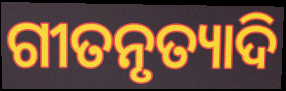
ଗୀତନୃତ୍ୟାଦି